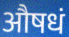
औषधं